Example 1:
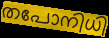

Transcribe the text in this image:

തപോനിധി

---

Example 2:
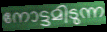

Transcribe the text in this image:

നോട്ടമിടുന്ന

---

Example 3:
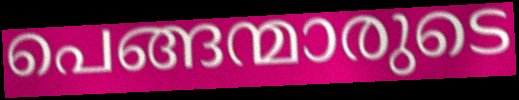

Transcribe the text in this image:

പെങ്ങന്മാരുടെ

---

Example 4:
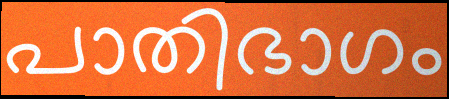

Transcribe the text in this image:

പാതിഭാഗം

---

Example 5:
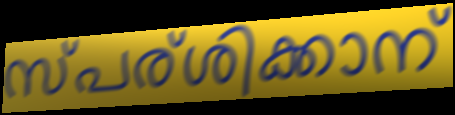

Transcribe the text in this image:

സ്പര്ശിക്കാന്